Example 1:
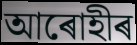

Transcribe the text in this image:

আৰোহীৰ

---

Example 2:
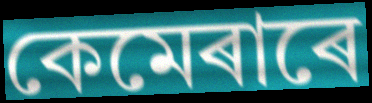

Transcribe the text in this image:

কেমেৰাৰে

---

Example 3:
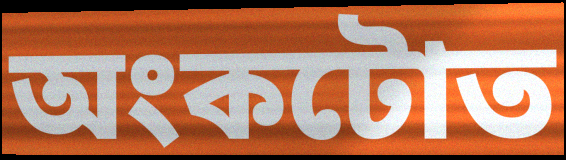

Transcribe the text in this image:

অংকটোত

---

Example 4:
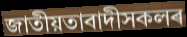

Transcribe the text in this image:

জাতীয়তাবাদীসকলৰ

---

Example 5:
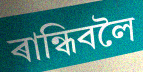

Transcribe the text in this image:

ৰান্ধিবলৈ